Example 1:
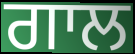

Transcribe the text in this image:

ਗਾਲ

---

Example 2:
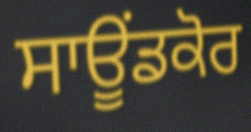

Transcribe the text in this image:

ਸਾਊਂਡਕੋਰ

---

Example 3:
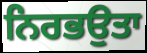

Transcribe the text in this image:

ਨਿਰਭਉਤਾ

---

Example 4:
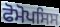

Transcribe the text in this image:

ਫੋਮੋਪਸਿਸ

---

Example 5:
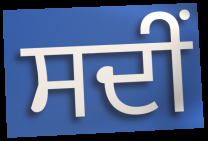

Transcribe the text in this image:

ਸਦੀਂ